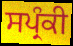
ਸਪ੍ਰੰਕੀ